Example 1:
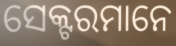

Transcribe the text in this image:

ସେକ୍ଟରମାନେ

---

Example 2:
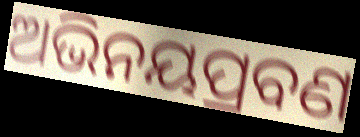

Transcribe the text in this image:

ଅଭିନୟପ୍ରବଣ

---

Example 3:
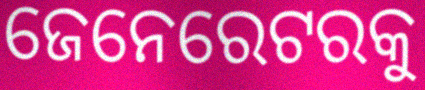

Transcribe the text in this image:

ଜେନେରେଟରକୁ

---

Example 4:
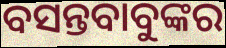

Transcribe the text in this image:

ବସନ୍ତବାବୁଙ୍କର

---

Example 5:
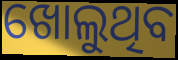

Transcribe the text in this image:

ଖୋଲୁଥିବ